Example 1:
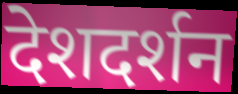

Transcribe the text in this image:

देशदर्शन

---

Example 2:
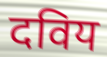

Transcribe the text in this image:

दविय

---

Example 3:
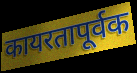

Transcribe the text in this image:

कायरतापूर्वक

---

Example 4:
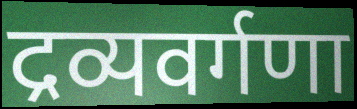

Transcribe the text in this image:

द्रव्यवर्गणा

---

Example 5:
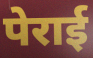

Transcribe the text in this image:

पेराई